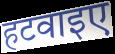
हटवाइए